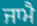
ਜਾਮੈ